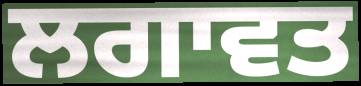
ਲਗਾਵਤ